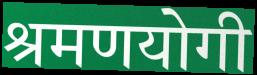
श्रमणयोगी